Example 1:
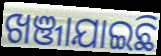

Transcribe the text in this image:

ଖଞ୍ଜାଯାଇଛି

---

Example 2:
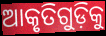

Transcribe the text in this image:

ଆକୃତିଗୁଡ଼ିକୁ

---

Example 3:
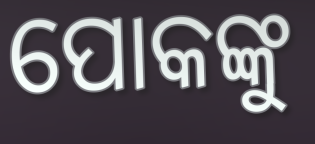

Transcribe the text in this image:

ପୋକଙ୍କୁ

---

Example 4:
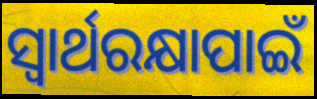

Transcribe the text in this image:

ସ୍ୱାର୍ଥରକ୍ଷାପାଇଁ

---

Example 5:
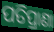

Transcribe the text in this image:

ପତିପ୍ରାଣା